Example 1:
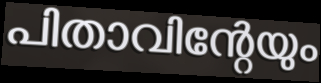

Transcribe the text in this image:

പിതാവിന്റേയും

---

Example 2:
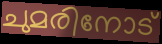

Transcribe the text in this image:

ചുമരിനോട്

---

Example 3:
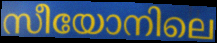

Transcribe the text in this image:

സീയോനിലെ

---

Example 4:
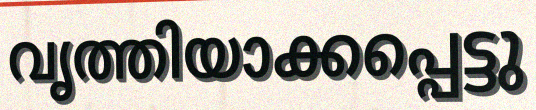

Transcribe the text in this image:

വൃത്തിയാക്കപ്പെട്ടു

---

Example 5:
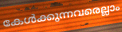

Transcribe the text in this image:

കേൾക്കുന്നവരെല്ലാം